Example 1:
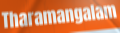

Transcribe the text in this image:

Tharamangalam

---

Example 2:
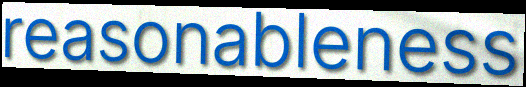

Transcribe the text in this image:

reasonableness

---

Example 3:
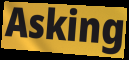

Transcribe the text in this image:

Asking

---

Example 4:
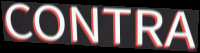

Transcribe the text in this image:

CONTRA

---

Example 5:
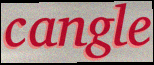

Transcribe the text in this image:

cangle